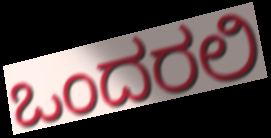
ಒಂದರಲಿ